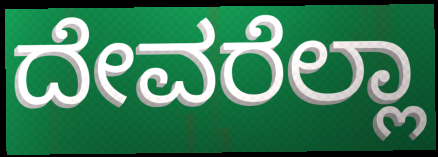
ದೇವರೆಲ್ಲಾ